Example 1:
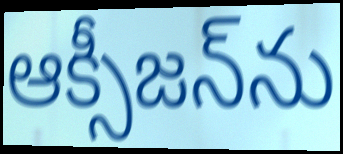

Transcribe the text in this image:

ఆక్సీజన్‌ను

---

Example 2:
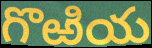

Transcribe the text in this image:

గొఱియ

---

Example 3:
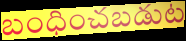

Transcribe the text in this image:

బంధించబడుట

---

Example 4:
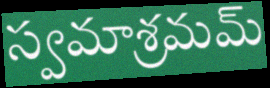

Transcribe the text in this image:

స్వమాశ్రమమ్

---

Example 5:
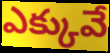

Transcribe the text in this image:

ఎక్కువే